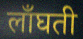
लाँघती